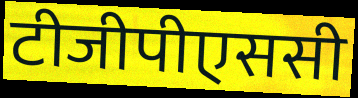
टीजीपीएससी